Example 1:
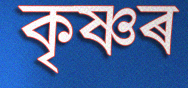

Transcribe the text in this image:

কৃষ্ণৰ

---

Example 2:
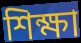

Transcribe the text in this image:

শিক্ষা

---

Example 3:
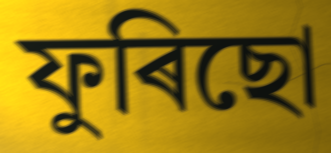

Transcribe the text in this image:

ফুৰিছো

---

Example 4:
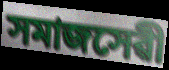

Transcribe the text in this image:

সমাজসেৱী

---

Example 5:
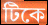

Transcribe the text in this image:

টিকে